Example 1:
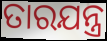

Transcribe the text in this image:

ତାରଯନ୍ତ୍ର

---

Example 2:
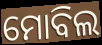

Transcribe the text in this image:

ମୋବିଲ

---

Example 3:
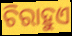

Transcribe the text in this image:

ଚିରାହୁଏ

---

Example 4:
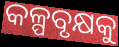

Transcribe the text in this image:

କଳ୍ପବୃକ୍ଷକୁ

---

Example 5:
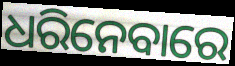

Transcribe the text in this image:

ଧରିନେବାରେ